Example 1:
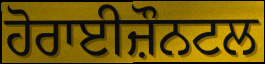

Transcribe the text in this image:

ਹੋਰਾਈਜ਼ੌਨਟਲ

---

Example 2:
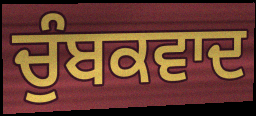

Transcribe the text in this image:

ਚੁੰਬਕਵਾਦ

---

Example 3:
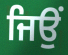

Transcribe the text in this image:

ਜਿਉਂ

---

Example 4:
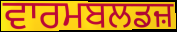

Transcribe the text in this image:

ਵਾਰਮਬਲਡਜ਼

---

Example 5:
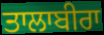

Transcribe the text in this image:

ਤਾਲਾਬੀਰਾ